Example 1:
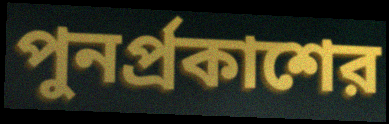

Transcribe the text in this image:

পুনর্প্রকাশের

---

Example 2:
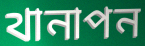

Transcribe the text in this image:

থানাপন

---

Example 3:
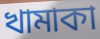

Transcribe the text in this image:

খামাকা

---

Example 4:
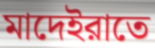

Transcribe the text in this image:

মাদেইরাতে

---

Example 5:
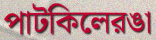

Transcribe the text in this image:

পাটকিলেরঙা